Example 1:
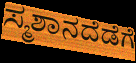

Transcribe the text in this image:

ಸ್ಮಶಾನದೆಡೆಗೆ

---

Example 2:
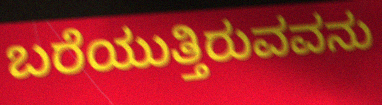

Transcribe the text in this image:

ಬರೆಯುತ್ತಿರುವವನು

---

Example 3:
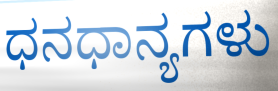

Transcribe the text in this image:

ಧನಧಾನ್ಯಗಳು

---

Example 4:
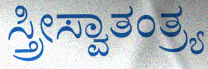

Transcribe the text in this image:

ಸ್ತ್ರೀಸ್ವಾತಂತ್ರ್ಯ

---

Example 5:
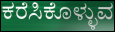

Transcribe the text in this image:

ಕರೆಸಿಕೊಳ್ಳುವ